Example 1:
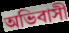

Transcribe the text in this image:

অভিবাসী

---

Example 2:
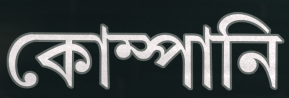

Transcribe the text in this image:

কোম্পানি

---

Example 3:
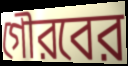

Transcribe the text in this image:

গৌরবের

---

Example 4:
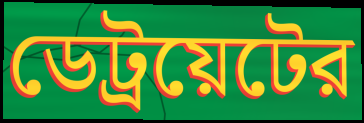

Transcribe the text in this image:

ডেট্রয়েটের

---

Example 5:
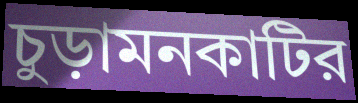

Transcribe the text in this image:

চুড়ামনকাটির